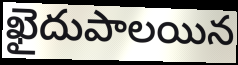
ఖైదుపాలయిన